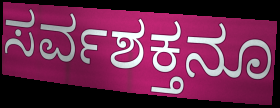
ಸರ್ವಶಕ್ತನೂ